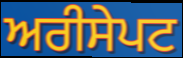
ਅਰੀਸੇਪਟ